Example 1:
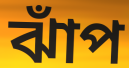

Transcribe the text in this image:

ঝাঁপ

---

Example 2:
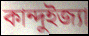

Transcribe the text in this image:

কান্দুইজ্যা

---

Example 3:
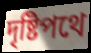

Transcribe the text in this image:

দৃষ্টিপথে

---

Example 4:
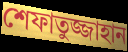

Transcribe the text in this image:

শেফাতুজ্জাহান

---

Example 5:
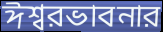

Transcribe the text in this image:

ঈশ্বরভাবনার